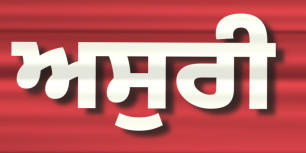
ਅਸੁਰੀ